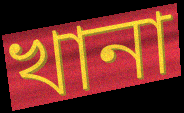
খানা